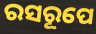
ରସରୂପେ